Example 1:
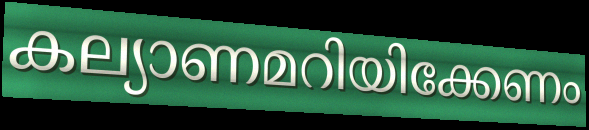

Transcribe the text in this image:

കല്യാണമറിയിക്കേണം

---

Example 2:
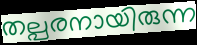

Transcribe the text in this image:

തല്പരനായിരുന്ന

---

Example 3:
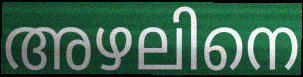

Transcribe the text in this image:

അഴലിനെ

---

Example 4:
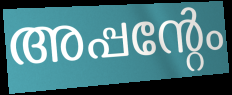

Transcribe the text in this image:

അപ്പന്റേം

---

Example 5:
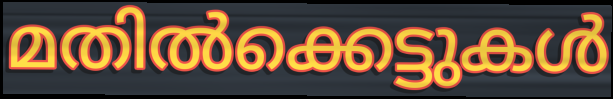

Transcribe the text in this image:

മതിൽക്കെട്ടുകൾ